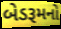
બેડરૂમનો